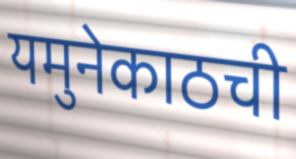
यमुनेकाठची